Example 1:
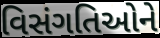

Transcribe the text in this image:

વિસંગતિઓને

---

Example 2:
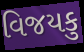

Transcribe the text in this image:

વિજયકુ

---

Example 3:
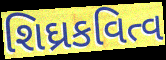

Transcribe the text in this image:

શિઘ્રકવિત્વ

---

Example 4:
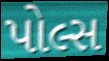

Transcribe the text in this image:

પોલ્સ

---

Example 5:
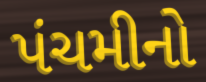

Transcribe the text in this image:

પંચમીનો